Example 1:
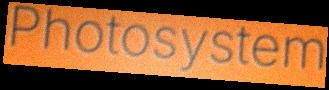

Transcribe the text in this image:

Photosystem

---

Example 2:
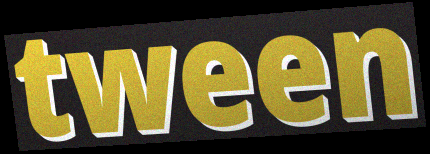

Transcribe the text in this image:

tween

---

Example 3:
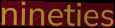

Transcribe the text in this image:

nineties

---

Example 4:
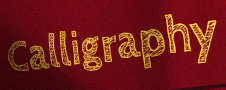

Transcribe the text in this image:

Calligraphy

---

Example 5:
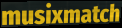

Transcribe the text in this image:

musixmatch